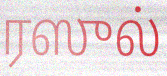
ரஸுல்